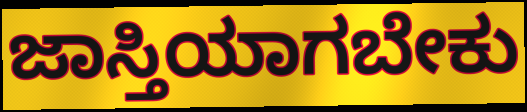
ಜಾಸ್ತಿಯಾಗಬೇಕು